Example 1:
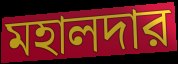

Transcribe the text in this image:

মহালদার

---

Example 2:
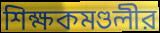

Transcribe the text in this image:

শিক্ষকমণ্ডলীর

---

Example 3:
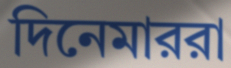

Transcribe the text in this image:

দিনেমাররা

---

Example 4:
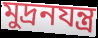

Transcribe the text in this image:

মুদ্রনযন্ত্র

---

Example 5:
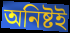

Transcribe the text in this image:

অনিষ্টই